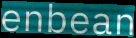
enbean